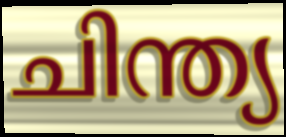
ചിന്ത്യ